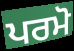
ਪਰਮੋ